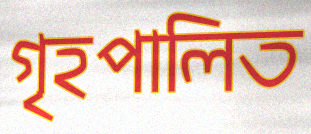
গৃহপালিত